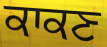
ਕਾਕਣ